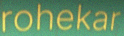
rohekar